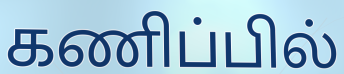
கணிப்பில்